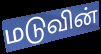
மடுவின்